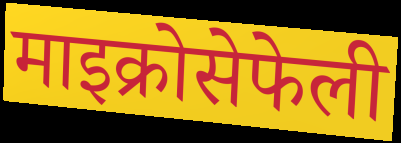
माइक्रोसेफेली